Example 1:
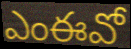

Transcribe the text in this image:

ఎంఈవో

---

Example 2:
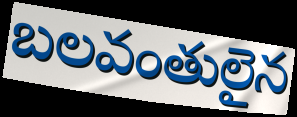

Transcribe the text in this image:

బలవంతులైన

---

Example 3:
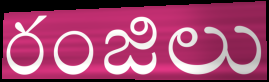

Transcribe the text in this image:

రంజిలు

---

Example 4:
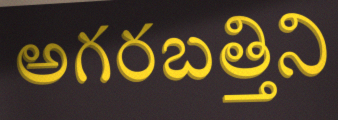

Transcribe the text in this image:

అగరబత్తిని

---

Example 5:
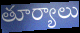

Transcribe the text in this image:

తూర్యాలు